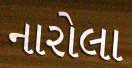
નારોલા